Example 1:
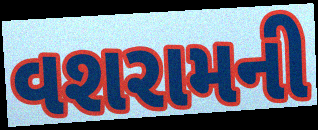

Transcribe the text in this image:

વશરામની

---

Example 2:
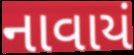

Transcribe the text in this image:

નાવાયં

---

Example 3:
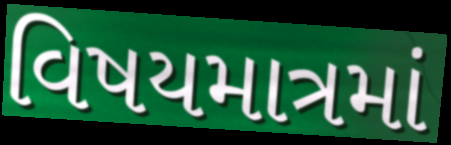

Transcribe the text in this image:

વિષયમાત્રમાં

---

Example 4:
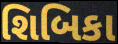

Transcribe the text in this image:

શિબિકા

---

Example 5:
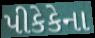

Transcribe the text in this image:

પીકેકેના